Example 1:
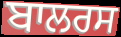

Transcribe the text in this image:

ਬਾਲਰਸ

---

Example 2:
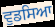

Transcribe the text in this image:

ਵੁਡਸਿਆ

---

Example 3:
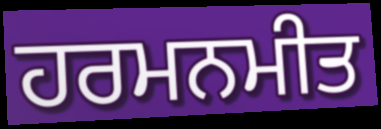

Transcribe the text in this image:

ਹਰਮਨਮੀਤ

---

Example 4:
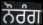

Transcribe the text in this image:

ਨੌਰੰਗ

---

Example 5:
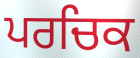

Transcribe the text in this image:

ਪਰਚਿਕ